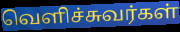
வெளிச்சுவர்கள்